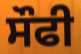
ਸੌਫੀ